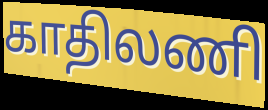
காதிலணி